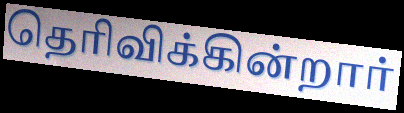
தெரிவிக்கின்றார்